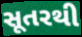
સૂતરથી